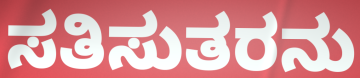
ಸತಿಸುತರನು